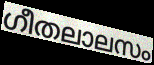
ഗീതലാലസം